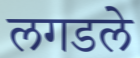
लगडले